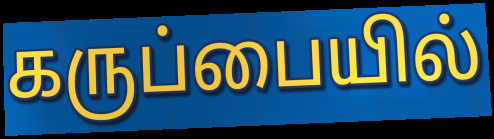
கருப்பையில்